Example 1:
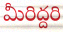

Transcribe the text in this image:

మీరిద్దరి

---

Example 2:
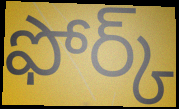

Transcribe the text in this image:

ఫోర్క్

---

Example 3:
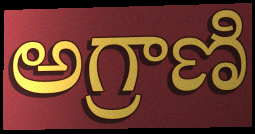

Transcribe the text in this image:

అగ్రాణి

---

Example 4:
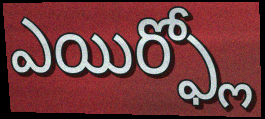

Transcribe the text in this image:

ఎయిర్ఫ్లో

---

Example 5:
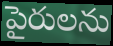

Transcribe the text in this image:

పైరులను